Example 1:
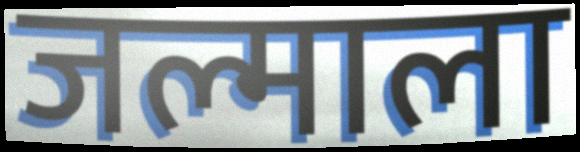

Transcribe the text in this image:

जल्माला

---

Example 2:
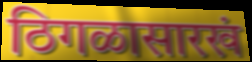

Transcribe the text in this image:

ठिगळासारखं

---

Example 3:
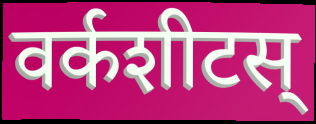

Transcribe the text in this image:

वर्कशीटस्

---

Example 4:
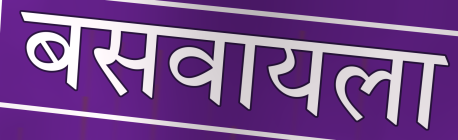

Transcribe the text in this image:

बसवायला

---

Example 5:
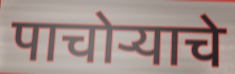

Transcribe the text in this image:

पाचोऱ्याचे